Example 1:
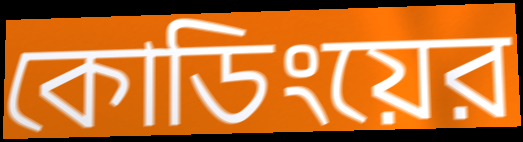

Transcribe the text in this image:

কোডিংয়ের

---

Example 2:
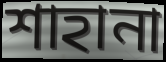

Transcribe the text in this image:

শাহানা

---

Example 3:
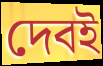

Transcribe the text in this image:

দেবই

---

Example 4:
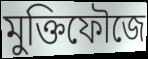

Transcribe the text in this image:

মুক্তিফৌজে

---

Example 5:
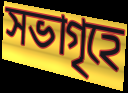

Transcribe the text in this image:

সভাগৃহে